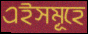
এইসমূহে